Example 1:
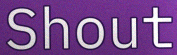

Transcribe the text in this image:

Shout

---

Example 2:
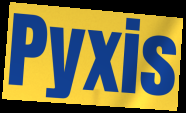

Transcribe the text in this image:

Pyxis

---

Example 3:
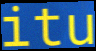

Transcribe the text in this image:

itu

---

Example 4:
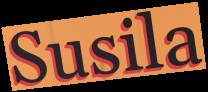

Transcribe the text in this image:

Susila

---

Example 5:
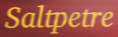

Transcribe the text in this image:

Saltpetre